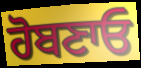
ਹੋਬਣਾਓ